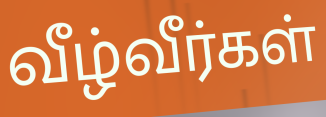
வீழ்வீர்கள்